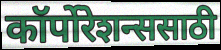
कॉर्पोरेशन्ससाठी